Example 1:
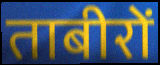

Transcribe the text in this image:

ताबीरों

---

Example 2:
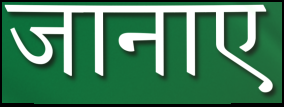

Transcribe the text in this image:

जानाए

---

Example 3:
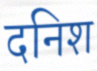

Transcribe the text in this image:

दनिश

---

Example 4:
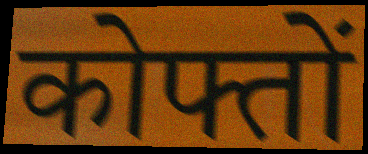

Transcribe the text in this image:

कोफ्तों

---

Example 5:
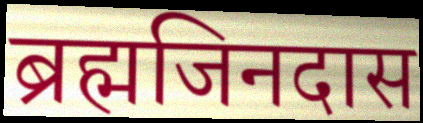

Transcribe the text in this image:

ब्रह्मजिनदास